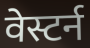
वेस्टर्न